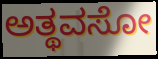
ಅತ್ಥವಸೋ